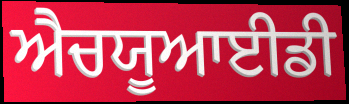
ਐਚਯੂਆਈਡੀ